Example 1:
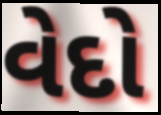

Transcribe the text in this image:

વેદો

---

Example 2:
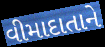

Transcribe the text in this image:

વીમાદાતાને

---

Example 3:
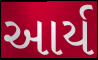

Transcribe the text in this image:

આર્ય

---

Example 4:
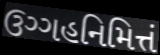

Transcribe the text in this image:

ઉગ્ગહનિમિત્તં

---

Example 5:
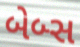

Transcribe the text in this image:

બેબ્સ